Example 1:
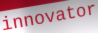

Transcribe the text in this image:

innovator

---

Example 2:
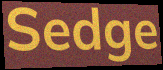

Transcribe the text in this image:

Sedge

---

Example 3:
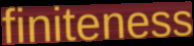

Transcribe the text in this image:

finiteness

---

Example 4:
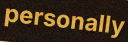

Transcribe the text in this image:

personally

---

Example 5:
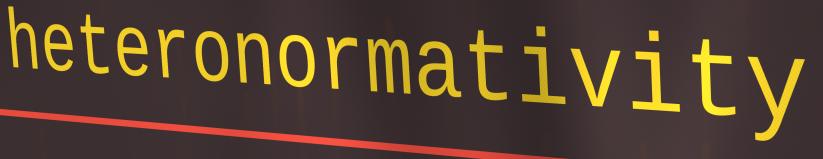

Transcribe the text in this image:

heteronormativity